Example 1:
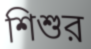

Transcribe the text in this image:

শিশুর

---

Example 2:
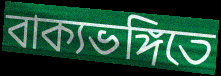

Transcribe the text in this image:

বাক্যভঙ্গিতে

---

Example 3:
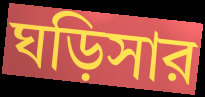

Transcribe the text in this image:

ঘড়িসার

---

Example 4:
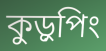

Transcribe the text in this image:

কুড়ুপিং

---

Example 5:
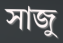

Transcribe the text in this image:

সাজু